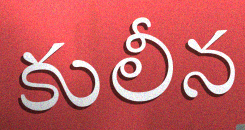
కులీన